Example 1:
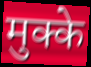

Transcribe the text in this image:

मुक्‍के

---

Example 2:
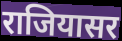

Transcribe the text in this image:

राजियासर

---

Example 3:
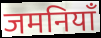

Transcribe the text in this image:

जमनियाँ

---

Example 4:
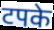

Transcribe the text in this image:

टपके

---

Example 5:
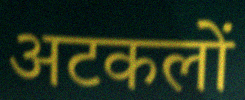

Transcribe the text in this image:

अटकलों